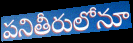
పనితీరులోనూ